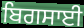
ਬਿਗਸਾਈ